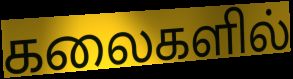
கலைகளில்